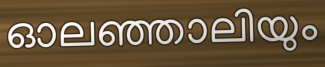
ഓലഞ്ഞാലിയും